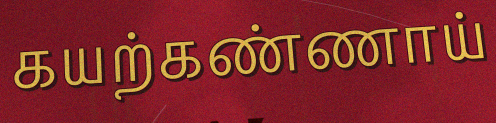
கயற்கண்ணாய்